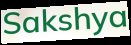
Sakshya